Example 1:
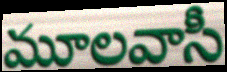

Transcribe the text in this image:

మూలవాసీ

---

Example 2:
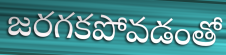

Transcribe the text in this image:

జరగకపోవడంతో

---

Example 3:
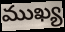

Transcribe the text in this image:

ముఖ్య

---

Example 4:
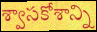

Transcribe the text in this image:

శ్వాసకోశాన్ని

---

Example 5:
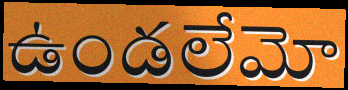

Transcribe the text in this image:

ఉండలేమో